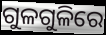
ଗୁଳଗୁଳିରେ